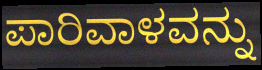
ಪಾರಿವಾಳವನ್ನು